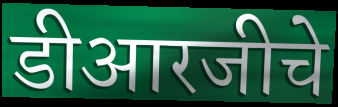
डीआरजीचे